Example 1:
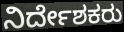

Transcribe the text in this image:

ನಿರ್ದೇಶಕರು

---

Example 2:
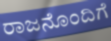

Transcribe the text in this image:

ರಾಜನೊಂದಿಗೆ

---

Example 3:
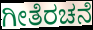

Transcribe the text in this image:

ಗೀತೆರಚನೆ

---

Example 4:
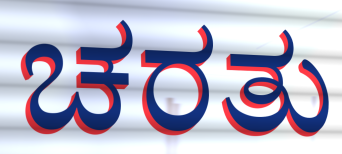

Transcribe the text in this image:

ಚರತು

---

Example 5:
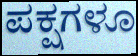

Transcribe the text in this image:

ಪಕ್ಷಗಳೂ